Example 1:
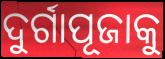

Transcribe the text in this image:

ଦୁର୍ଗାପୂଜାକୁ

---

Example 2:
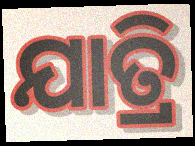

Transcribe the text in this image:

ଯାତ୍ରି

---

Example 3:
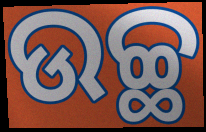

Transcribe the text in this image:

ଉଚ୍ଛ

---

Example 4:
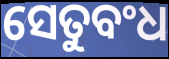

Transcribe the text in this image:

ସେତୁବଂଧ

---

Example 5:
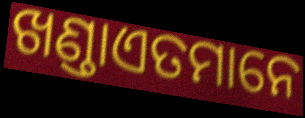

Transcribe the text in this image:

ଖଣ୍ଡାଏତମାନେ